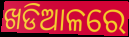
ଖଡିଆଳରେ